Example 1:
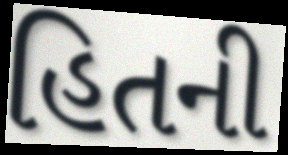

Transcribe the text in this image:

હિતની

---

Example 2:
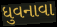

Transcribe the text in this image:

ધુવનાવા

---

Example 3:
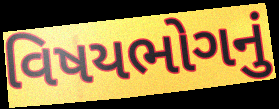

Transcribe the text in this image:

વિષયભોગનું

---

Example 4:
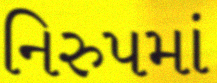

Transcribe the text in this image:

નિરુપમાં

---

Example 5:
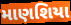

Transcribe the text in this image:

માણશિયા